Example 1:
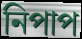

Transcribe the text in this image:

নিপাপ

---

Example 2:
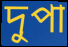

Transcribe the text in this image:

দুপা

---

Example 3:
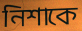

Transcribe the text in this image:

নিশাকে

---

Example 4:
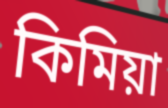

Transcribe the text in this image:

কিমিয়া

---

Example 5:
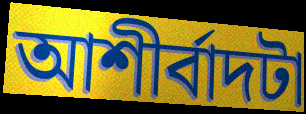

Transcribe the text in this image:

আশীর্বাদটা